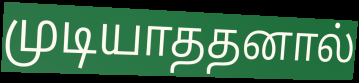
முடியாததனால்